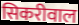
सिकरीवाल